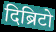
दिब्रिटो